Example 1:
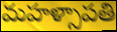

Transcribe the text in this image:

మహళ్సాపతి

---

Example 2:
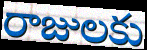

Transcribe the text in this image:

రాజులకు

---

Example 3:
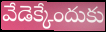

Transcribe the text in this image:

వేడెక్కేందుకు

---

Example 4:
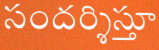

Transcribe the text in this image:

సందర్శిస్తూ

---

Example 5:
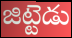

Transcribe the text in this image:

జిట్టెడు